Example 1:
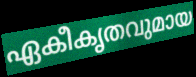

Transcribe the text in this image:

ഏകീകൃതവുമായ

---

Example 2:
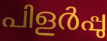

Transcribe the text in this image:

പിളർപ്പു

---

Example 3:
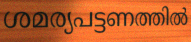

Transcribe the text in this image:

ശമര്യപട്ടണത്തിൽ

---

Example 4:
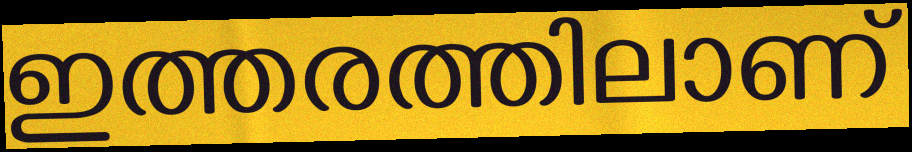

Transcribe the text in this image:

ഇത്തരത്തിലാണ്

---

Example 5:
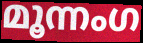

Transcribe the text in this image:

മൂന്നംഗ